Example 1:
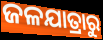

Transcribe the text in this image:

ଜଳଯାତ୍ରାରୁ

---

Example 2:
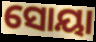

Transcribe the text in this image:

ସୋୟା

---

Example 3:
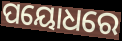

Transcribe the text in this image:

ପୟୋଧରେ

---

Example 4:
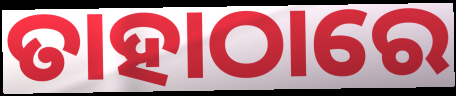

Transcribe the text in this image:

ତାହାଠାରେ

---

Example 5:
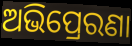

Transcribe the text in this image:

ଅଭିପ୍ରେରଣା